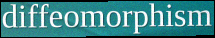
diffeomorphism